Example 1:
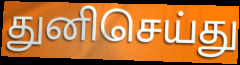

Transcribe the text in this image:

துனிசெய்து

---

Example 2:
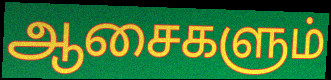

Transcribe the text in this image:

ஆசைகளும்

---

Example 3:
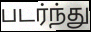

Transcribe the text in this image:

படர்ந்து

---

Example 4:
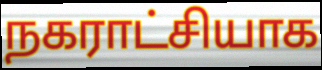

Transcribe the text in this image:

நகராட்சியாக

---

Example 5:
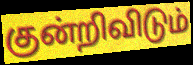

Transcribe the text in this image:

குன்றிவிடும்